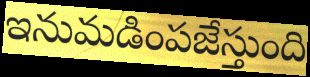
ఇనుమడింపజేస్తుంది